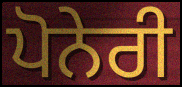
ਪੋਨੇਰੀ